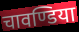
चावण्डिया